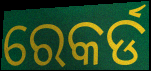
ରେକର୍ଡ